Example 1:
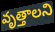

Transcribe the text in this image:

వృత్తాలని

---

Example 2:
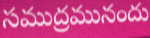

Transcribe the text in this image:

సముద్రమునందు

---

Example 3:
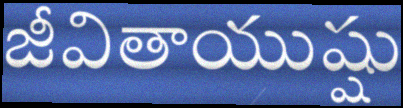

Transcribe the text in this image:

జీవితాయుష్షు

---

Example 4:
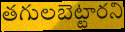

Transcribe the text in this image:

తగులబెట్టారని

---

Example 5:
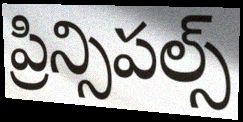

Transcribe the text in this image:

ప్రిన్సిపల్స్